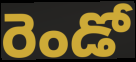
రెండో